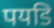
पयडि